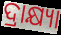
ଦ୍ରାକ୍ଷ୍ୟା